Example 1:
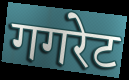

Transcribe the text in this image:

गगरेट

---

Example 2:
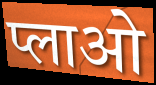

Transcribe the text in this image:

प्लाओ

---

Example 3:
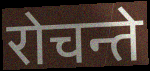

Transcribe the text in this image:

रोचन्ते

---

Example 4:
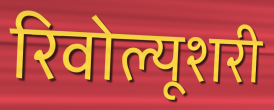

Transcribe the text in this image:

रिवोल्यूशरी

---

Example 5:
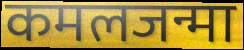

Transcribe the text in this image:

कमलजन्मा